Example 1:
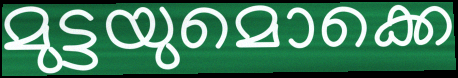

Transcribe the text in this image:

മുട്ടയുമൊക്കെ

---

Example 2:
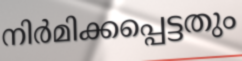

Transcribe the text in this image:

നിർമിക്കപ്പെട്ടതും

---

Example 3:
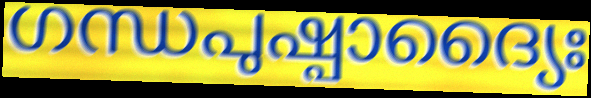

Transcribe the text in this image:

ഗന്ധപുഷ്പാദ്യൈഃ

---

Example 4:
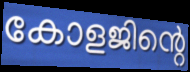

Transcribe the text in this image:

കോളജിന്റെ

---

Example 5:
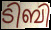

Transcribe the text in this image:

ടിബി